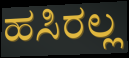
ಹಸಿರಲ್ಲ